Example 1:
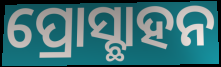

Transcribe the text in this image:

ପ୍ରୋସ୍ଛାହନ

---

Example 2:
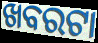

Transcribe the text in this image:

ଖବରଟା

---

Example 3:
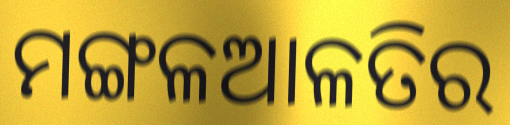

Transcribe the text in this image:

ମଙ୍ଗଳଆଳତିର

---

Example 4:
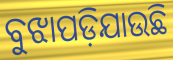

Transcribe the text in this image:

ବୁଝାପଡ଼ିଯାଉଛି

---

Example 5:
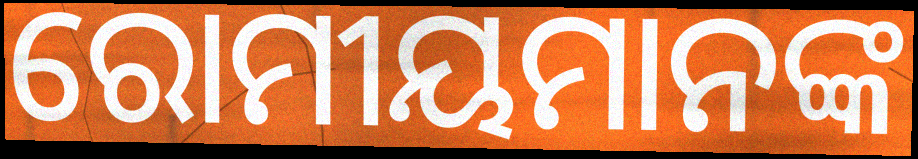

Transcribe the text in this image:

ରୋମୀୟମାନଙ୍କ